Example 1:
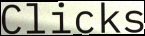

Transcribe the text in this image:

Clicks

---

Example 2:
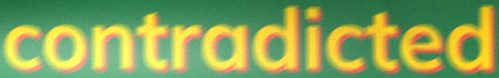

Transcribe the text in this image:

contradicted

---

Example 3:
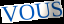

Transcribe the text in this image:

VOUS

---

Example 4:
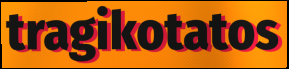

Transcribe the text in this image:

tragikotatos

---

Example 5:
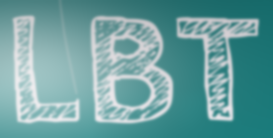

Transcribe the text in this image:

LBT